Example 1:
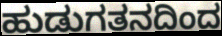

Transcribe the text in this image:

ಹುಡುಗತನದಿಂದ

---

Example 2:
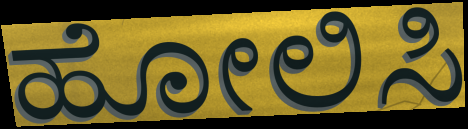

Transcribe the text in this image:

ಹೋಲಿಸಿ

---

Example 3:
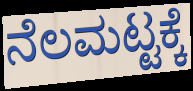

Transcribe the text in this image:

ನೆಲಮಟ್ಟಕ್ಕೆ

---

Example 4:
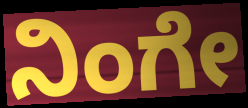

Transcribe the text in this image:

ನಿಂಗೇ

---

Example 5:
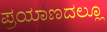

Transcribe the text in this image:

ಪ್ರಯಾಣದಲ್ಲೂ